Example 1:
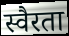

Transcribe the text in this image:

स्वैरता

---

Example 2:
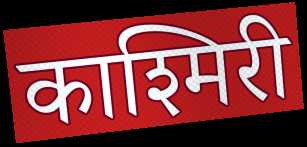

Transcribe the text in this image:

काश्मिरी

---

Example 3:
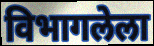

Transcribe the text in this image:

विभागलेला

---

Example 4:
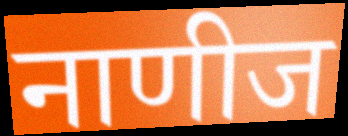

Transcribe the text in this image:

नाणीज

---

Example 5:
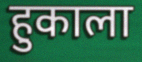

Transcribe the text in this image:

हुकाला